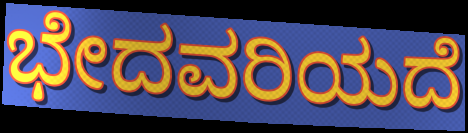
ಭೇದವರಿಯದೆ